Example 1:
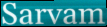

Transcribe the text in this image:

Sarvam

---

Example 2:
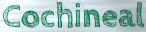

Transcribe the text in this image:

Cochineal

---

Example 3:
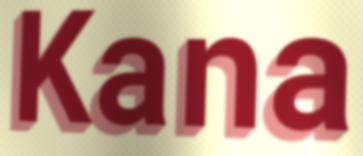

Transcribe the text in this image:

Kana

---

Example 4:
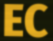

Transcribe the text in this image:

EC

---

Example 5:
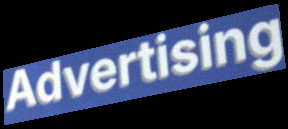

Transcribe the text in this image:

Advertising